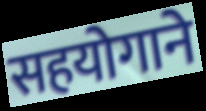
सहयोगाने